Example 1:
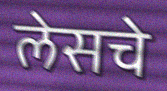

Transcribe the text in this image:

लेसचे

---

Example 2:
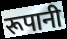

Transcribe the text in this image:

रूपानी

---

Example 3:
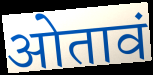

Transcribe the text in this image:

ओतावं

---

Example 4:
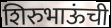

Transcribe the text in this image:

शिरुभाऊंची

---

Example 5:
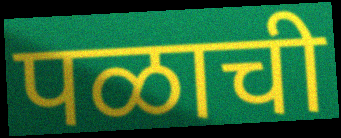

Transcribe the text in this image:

पळाची